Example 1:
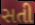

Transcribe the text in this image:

સતી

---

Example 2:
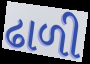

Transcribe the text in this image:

ઢાળી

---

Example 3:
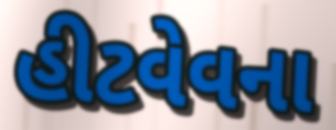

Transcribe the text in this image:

હીટવેવના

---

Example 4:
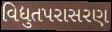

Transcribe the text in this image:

વિદ્યુતપરાસરણ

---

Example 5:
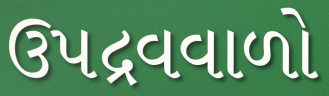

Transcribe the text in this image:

ઉપદ્રવવાળો